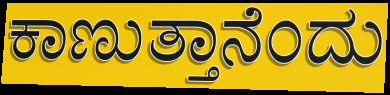
ಕಾಣುತ್ತಾನೆಂದು